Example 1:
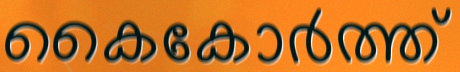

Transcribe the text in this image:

കൈകോർത്ത്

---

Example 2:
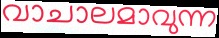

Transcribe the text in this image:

വാചാലമാവുന്ന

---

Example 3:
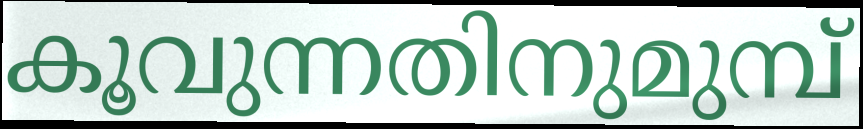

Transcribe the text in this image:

കൂവുന്നതിനുമുമ്പ്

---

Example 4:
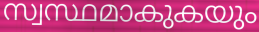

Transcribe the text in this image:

സ്വസ്ഥമാകുകയും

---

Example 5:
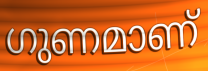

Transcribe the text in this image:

ഗുണമാണ്